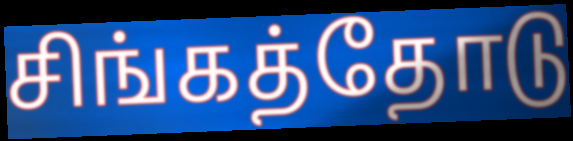
சிங்கத்தோடு